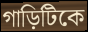
গাড়িটিকে